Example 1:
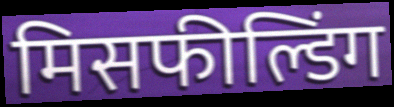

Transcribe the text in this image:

मिसफील्डिंग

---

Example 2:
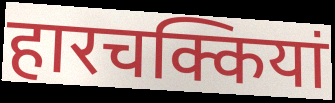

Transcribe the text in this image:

हारचक्कियां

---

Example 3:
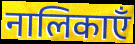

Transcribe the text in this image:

नालिकाएँ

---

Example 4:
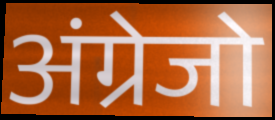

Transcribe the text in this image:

अंग्रेजो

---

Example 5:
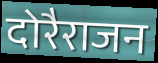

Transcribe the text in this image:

दोरैराजन